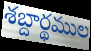
శబ్దార్థముల